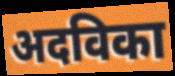
अदविका